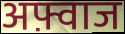
अफ़्वाज